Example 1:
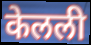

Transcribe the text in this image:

केलली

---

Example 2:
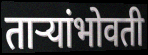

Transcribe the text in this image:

ताऱ्यांभोवती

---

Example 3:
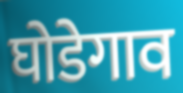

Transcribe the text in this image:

घोडेगाव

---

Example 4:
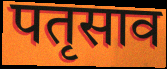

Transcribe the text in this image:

पतृसाव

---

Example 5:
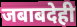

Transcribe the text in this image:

जबाबदेही